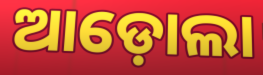
ଆଡ଼ୋଲା